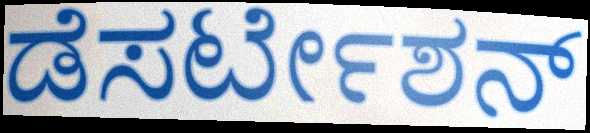
ಡೆಸರ್ಟೇಶನ್